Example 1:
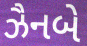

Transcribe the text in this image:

ઝૈનબે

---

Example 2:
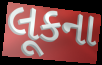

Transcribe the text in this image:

લૂકના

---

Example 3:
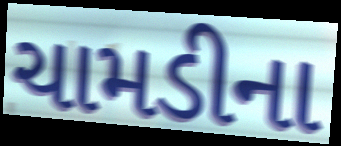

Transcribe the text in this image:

ચામડીના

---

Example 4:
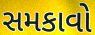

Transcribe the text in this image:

સમકાવો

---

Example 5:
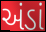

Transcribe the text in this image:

અંડાં